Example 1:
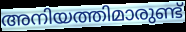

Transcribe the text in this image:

അനിയത്തിമാരുണ്ട്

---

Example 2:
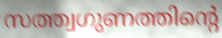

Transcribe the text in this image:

സത്ത്വഗുണത്തിന്റെ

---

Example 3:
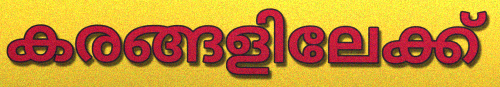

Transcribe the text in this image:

കരങ്ങളിലേക്ക്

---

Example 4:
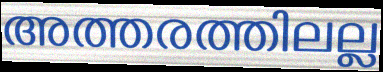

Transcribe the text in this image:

അത്തരത്തിലല്ല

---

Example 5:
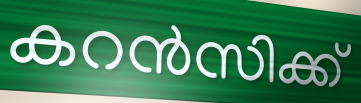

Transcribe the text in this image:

കറൻസിക്ക്